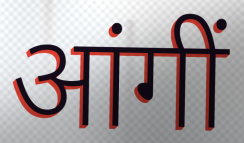
आंगीं